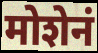
मोशेनं